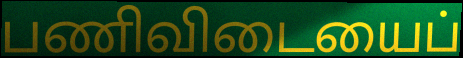
பணிவிடையைப்